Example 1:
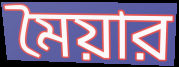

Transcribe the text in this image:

মৈয়ার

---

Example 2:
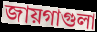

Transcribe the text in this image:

জায়গাগুলা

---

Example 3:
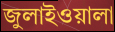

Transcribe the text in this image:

জুলাইওয়ালা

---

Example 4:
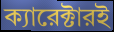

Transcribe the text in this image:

ক্যারেক্টারই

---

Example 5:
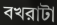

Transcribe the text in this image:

বখরাটা